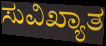
ಸುವಿಖ್ಯಾತ